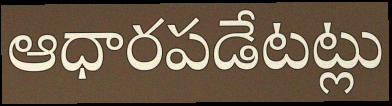
ఆధారపడేటట్లు